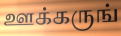
ஊக்கருங்